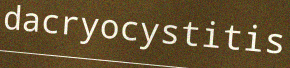
dacryocystitis